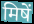
मिषें